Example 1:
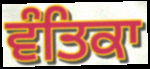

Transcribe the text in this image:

ਵੰਤਿਕਾ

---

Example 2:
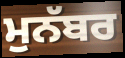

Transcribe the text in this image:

ਮੁਨੱਬਰ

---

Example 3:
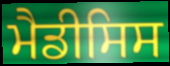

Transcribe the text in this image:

ਮੈਡੀਸਿਸ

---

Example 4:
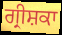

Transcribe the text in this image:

ਗ੍ਰੀਸ਼ਕਾ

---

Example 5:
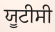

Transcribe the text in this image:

ਯੂਟੀਸੀ